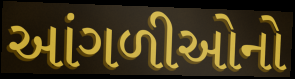
આંગળીઓનો